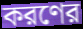
করণের